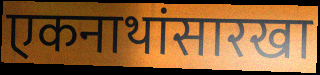
एकनाथांसारखा